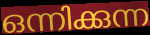
ഒന്നിക്കുന്ന